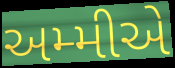
અમ્મીએ